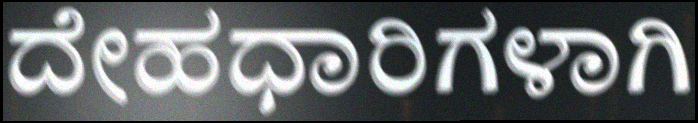
ದೇಹಧಾರಿಗಳಾಗಿ